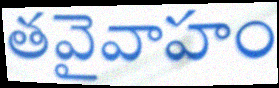
తవైవాహం